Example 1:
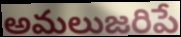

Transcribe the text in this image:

అమలుజరిపే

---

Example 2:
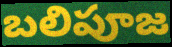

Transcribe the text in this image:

బలిపూజ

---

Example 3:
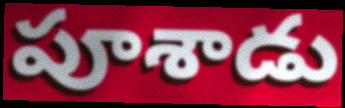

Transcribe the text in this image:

పూశాడు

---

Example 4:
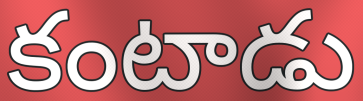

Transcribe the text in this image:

కంటాడు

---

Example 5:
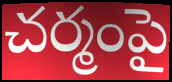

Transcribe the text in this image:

చర్మంపై